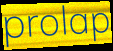
prolap